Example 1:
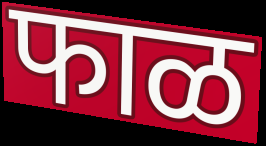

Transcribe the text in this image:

फाळ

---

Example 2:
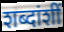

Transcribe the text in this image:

शब्दांशीं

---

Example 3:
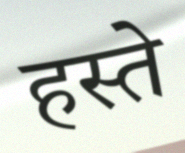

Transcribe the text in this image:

हस्ते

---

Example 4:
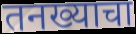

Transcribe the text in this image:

तनख्याचा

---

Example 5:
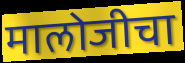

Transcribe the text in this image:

मालोजीचा